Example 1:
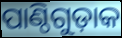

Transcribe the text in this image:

ପାଣ୍ଠିଗୁଡ଼ାକ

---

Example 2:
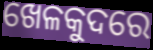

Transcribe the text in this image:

ଖେଳକୁଦରେ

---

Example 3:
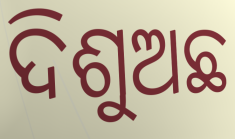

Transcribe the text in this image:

ଦିଶୁଅଛ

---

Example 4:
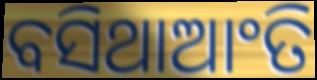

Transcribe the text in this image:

ବସିଥାଆଂତି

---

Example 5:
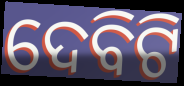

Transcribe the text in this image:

ଦେବିଟି